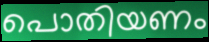
പൊതിയണം